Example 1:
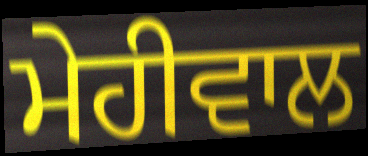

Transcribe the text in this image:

ਮੇਹੀਵਾਲ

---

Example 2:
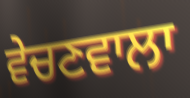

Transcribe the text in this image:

ਵੇਚਣਵਾਲਾ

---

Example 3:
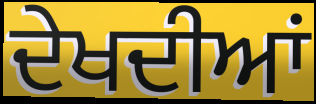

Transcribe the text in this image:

ਦੇਖਦੀਆਂ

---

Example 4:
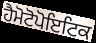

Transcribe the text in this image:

ਹੈਮੋਟੋਪੋਇਟਿਕ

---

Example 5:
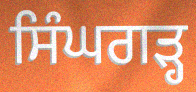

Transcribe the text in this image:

ਸਿੰਘਗੜ੍ਹ